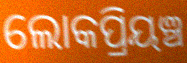
ଲୋକପ୍ରିୟଞ୍ଚ